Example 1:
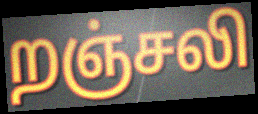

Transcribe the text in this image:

றஞ்சலி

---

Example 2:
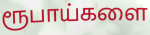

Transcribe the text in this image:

ரூபாய்களை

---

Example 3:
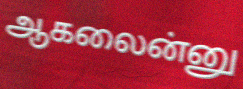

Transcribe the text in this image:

ஆகலைன்னு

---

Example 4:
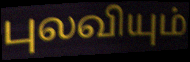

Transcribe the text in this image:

புலவியும்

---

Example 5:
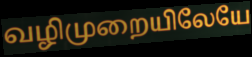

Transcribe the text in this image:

வழிமுறையிலேயே